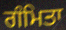
ਗੰਮਿਤਾ